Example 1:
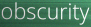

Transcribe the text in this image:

obscurity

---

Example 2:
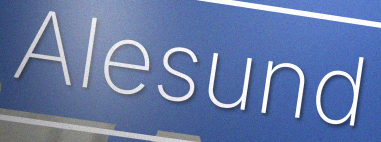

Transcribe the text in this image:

Alesund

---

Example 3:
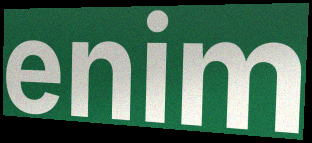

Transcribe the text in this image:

enim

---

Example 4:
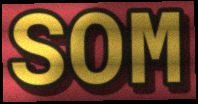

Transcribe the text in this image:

SOM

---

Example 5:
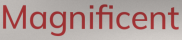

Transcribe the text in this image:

Magnificent